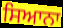
ਸਿਆਨਾ